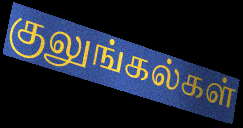
குலுங்கல்கள்